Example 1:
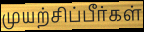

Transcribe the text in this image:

முயற்சிப்பீர்கள்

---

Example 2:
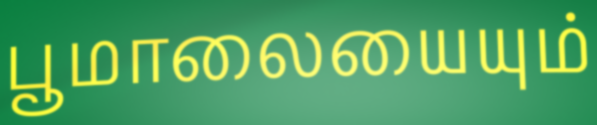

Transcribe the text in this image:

பூமாலையையும்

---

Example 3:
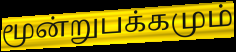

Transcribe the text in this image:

மூன்றுபக்கமும்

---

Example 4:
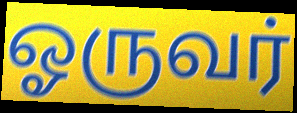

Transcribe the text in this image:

ஓருவர்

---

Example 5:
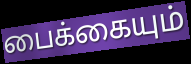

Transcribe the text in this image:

பைக்கையும்